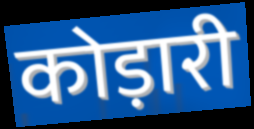
कोड़ारी